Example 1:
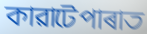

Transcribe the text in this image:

কাৱাটেপাৰাত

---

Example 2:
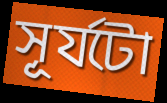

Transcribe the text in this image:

সূৰ্যটো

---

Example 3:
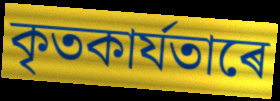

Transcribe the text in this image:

কৃতকাৰ্যতাৰে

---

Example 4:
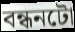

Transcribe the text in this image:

বন্ধনটো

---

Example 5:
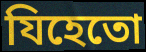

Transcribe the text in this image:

যিহেতো